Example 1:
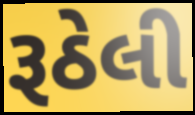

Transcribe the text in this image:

રૂઠેલી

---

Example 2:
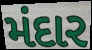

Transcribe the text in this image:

મંદાર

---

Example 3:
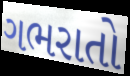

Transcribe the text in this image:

ગભરાતો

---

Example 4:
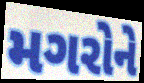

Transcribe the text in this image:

મગરોને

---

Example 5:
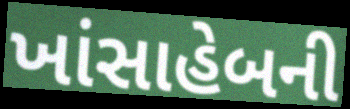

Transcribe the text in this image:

ખાંસાહેબની